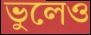
ভুলেও